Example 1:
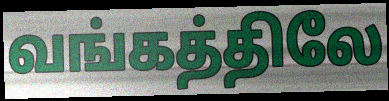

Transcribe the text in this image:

வங்கத்திலே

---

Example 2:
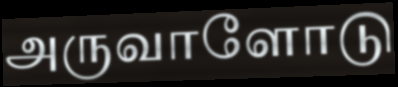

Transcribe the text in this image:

அருவாளோடு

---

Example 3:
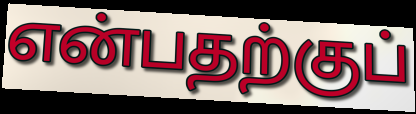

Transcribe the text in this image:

என்பதற்குப்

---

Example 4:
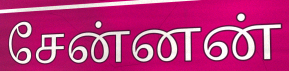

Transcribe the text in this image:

சேன்னன்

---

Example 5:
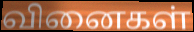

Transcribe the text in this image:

வினைகள்